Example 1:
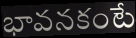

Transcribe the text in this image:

భావనకంటే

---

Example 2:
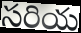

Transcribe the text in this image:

సరియ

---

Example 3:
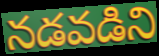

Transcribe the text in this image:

నడవడిని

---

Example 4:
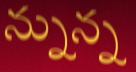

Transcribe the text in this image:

న్నున్న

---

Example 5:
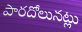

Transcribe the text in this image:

పారదోలునట్లు